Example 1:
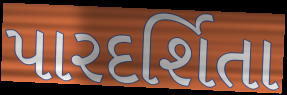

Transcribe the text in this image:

પારદર્શિતા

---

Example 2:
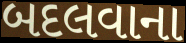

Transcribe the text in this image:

બદલવાના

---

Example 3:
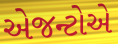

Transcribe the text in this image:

એજન્ટોએ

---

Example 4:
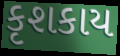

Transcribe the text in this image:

કૃશકાય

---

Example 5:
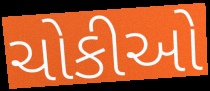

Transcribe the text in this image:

ચોકીઓ